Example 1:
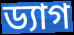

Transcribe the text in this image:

ড্যাগ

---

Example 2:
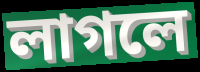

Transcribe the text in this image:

লাগলে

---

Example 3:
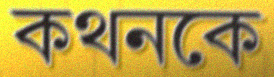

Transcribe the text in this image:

কথনকে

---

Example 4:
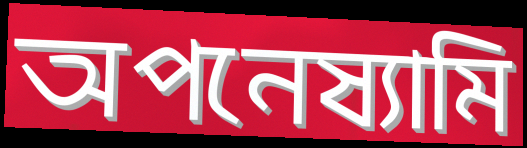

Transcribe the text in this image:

অপনেষ্যামি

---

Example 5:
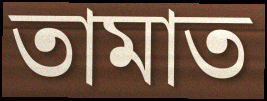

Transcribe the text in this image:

তামাত